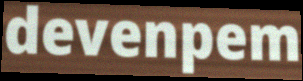
devenpem